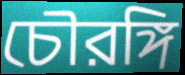
চৌরঙ্গি